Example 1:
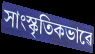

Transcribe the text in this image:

সাংস্কৃতিকভাৱে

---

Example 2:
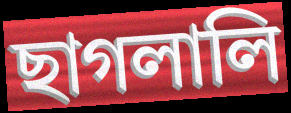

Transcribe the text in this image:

ছাগলালি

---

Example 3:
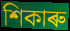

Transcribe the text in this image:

শিকাৰু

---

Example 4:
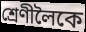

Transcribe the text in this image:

শ্ৰেণীলৈকে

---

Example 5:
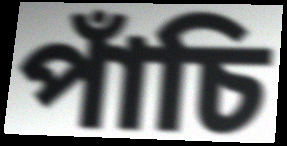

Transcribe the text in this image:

পাঁচি